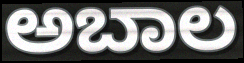
ಅಬಾಲ